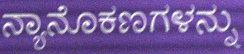
ನ್ಯಾನೊಕಣಗಳನ್ನು